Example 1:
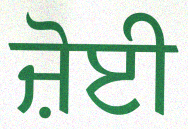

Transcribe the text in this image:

ਜ਼ੋਈ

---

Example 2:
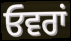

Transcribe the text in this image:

ਓਵਰਾਂ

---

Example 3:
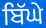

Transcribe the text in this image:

ਬਿੱਘੇ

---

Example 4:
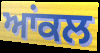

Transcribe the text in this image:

ਆਂਕਲ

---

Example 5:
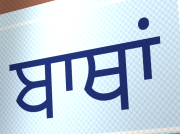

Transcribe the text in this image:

ਬਾਥਾਂ